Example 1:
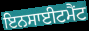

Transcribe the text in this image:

ਇਨਸਾਈਟਮੈਂਟ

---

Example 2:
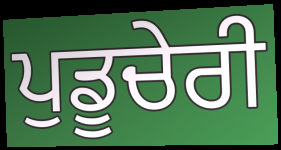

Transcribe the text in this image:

ਪੁਡੂਚੇਰੀ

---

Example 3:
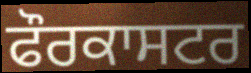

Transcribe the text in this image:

ਫੌਰਕਾਸਟਰ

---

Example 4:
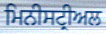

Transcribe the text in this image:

ਮਿਨੀਸਟ੍ਰੀਅਲ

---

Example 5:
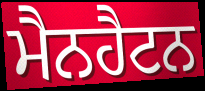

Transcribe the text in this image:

ਮੈਨਹੈਟਨ